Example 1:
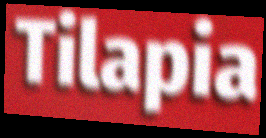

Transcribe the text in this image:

Tilapia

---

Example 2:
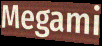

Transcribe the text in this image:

Megami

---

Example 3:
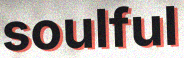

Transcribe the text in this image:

soulful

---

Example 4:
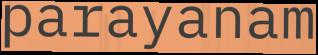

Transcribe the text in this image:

parayanam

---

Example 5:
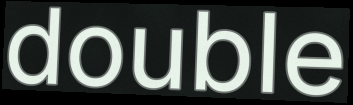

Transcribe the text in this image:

double